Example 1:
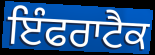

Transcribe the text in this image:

ਇੰਫਰਾਟੈਕ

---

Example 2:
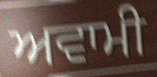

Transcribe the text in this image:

ਅਵਾਮੀ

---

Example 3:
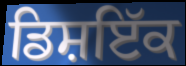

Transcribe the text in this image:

ਡਿਸ਼ਇੱਕ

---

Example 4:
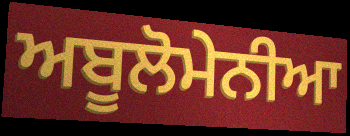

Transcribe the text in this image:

ਅਬੂਲੋਮੇਨੀਆ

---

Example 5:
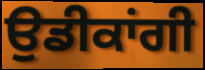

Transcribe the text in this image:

ਉਡੀਕਾਂਗੀ